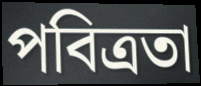
পবিত্রতা